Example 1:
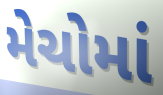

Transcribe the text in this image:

મેચોમાં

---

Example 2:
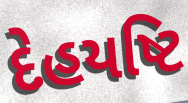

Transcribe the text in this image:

દેહયષ્ટિ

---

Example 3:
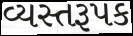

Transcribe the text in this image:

વ્યસ્તરૂપક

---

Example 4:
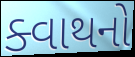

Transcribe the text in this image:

ક્વાથનો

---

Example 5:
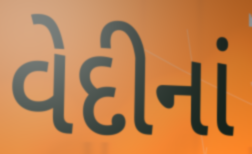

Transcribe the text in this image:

વેદીનાં